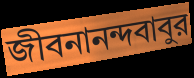
জীবনানন্দবাবুর